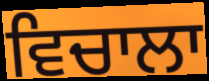
ਵਿਚਾਲਾ